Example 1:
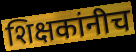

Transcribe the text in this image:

शिक्षकांनीच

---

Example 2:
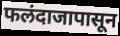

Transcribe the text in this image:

फलंदाजापासून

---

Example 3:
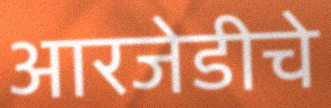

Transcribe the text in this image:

आरजेडीचे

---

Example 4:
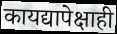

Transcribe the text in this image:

कायद्यापेक्षाही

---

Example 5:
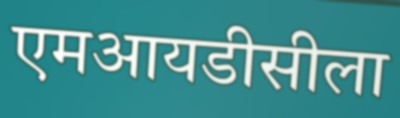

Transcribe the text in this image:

एमआयडीसीला